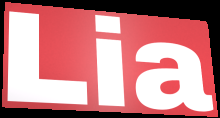
Lia